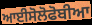
ਆਈਸੋਲੋਫੋਬੀਆ